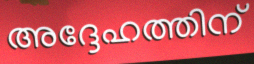
അദ്ദേഹത്തിന്